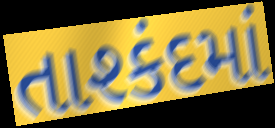
તાશ્કંદમાં